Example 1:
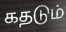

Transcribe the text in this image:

கதடும்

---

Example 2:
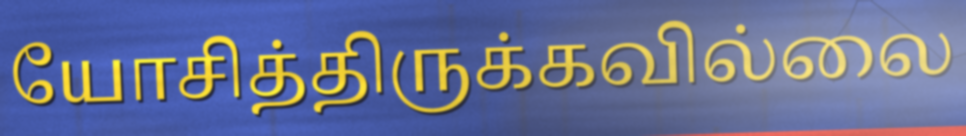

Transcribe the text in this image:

யோசித்திருக்கவில்லை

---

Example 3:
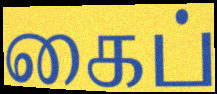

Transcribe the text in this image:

கைப்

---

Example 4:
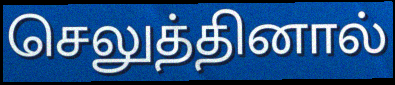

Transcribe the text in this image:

செலுத்தினால்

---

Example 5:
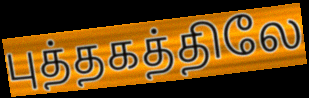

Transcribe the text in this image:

புத்தகத்திலே